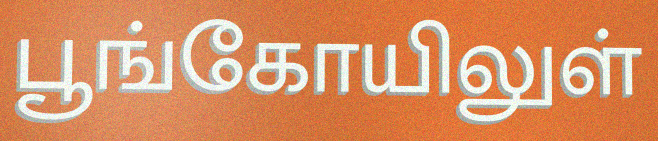
பூங்கோயிலுள்